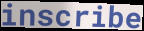
inscribe